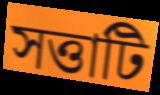
সত্তাটি